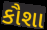
કૌશા